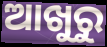
ଆଖୁରୁ